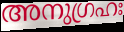
അനുഗ്രഹഃ